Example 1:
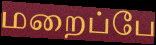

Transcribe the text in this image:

மறைப்பே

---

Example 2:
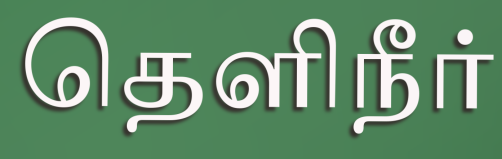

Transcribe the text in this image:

தெளிநீர்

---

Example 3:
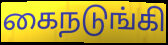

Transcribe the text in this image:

கைநடுங்கி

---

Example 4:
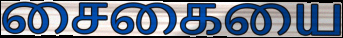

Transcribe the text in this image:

சைகையை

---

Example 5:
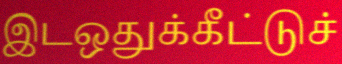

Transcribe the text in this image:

இடஒதுக்கீட்டுச்